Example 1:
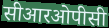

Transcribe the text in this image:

सीआरओपीसी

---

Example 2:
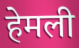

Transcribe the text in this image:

हेमली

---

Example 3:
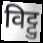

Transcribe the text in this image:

विट्टु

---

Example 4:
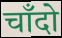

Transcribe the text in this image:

चाँदो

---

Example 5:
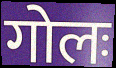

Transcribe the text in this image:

गोलः